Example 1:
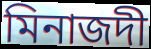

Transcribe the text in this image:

মিনাজদী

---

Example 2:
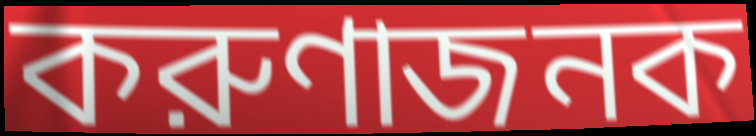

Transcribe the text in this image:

করুণাজনক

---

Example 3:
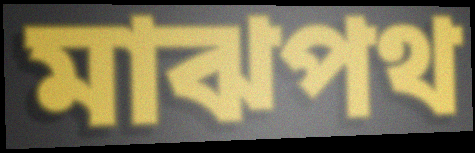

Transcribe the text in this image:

মাঝপথ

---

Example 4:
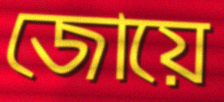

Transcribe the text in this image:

জোয়ে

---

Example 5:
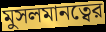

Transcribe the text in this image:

মুসলমানত্বের